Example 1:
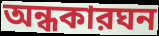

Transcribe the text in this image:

অন্ধকারঘন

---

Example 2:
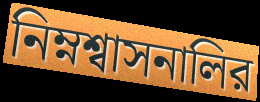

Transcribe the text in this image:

নিম্নশ্বাসনালির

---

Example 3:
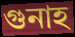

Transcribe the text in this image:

গুনাহ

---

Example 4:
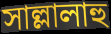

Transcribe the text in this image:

সাল্লালাহু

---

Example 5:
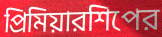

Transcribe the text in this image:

প্রিমিয়ারশিপের